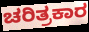
ಚರಿತ್ರಕಾರ